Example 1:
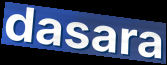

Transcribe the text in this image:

dasara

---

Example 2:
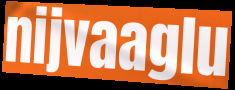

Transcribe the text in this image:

nijvaaglu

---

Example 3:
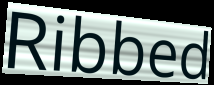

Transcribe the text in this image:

Ribbed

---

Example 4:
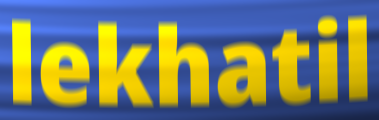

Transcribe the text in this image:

lekhatil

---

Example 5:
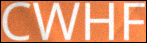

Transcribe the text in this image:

CWHF